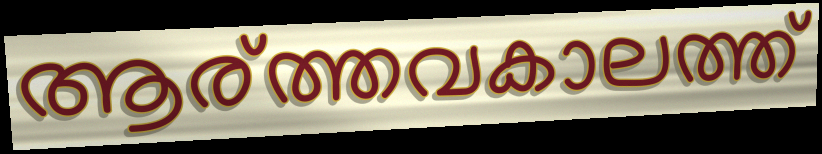
ആര്ത്തവകാലത്ത്